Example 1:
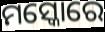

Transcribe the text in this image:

ମସ୍କୋରେ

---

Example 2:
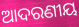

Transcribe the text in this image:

ଆଦରଣୀୟ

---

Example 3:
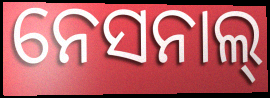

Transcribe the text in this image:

ନେସନାଲ୍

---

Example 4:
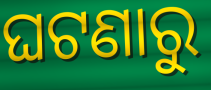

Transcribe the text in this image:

ଘଟଣାରୁ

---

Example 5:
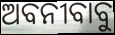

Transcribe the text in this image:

ଅବନୀବାବୁ